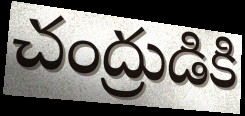
చంద్రుడికి